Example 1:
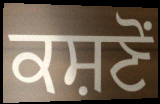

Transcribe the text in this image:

ਕਸ਼ਣੋਂ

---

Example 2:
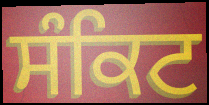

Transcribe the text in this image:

ਸੰਕਿਟ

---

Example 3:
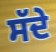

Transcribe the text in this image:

ਸੱਦੇ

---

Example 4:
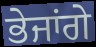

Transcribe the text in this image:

ਭੇਜਾਂਗੇ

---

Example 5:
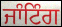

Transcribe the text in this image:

ਜਾੰਟਿੰਗ